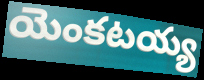
యెంకటయ్య